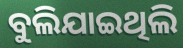
ବୁଲିଯାଇଥିଲି